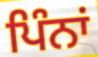
ਪਿੰਨਾਂ